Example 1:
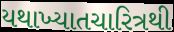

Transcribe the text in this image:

યથાખ્યાતચારિત્રથી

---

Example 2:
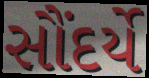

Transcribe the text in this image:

સૌંદર્યે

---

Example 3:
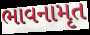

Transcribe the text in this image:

ભાવનામૃત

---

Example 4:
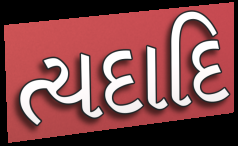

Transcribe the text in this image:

ત્યદાદિ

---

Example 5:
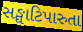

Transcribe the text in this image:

સઙ્ઘાટિપારુતા